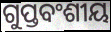
ଗୁପ୍ତବଂଶୀୟ